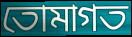
তোমাগত